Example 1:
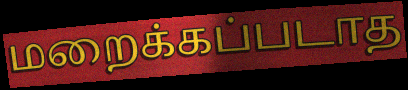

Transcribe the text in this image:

மறைக்கப்படாத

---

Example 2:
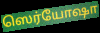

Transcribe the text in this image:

ஸெர்யோஷா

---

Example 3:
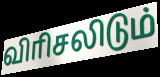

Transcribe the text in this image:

விரிசலிடும்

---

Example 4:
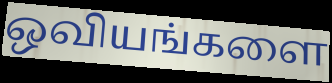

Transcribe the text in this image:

ஒவியங்களை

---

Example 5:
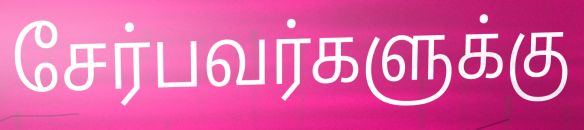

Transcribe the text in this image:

சேர்பவர்களுக்கு